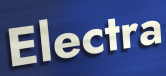
Electra